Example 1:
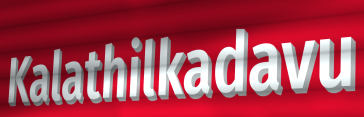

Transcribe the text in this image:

Kalathilkadavu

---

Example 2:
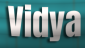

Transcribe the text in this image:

Vidya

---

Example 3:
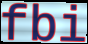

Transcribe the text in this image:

fbi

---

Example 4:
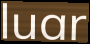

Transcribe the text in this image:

luar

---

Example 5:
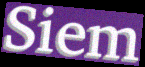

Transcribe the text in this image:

Siem